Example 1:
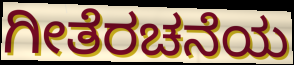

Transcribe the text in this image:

ಗೀತೆರಚನೆಯ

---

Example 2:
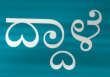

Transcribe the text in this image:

ದ್ದಾಳೆ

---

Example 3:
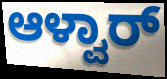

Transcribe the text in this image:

ಆಳ್ವಾರ್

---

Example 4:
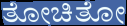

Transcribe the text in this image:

ತೋಚಿತೋ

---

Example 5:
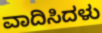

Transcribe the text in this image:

ವಾದಿಸಿದಳು